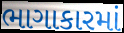
ભાગાકારમાં